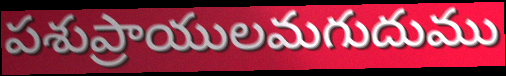
పశుప్రాయులమగుదుము